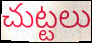
చుట్టలు